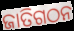
ଜାତିଗଠନ